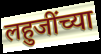
लहुजींच्या